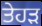
ਤੇਹੜ